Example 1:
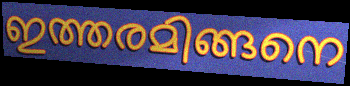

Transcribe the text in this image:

ഇത്തരമിങ്ങനെ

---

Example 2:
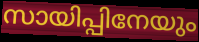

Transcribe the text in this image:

സായിപ്പിനേയും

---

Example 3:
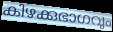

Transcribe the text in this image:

കിഴക്കുഭാഗവും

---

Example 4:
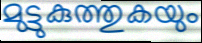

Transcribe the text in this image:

മുട്ടുകുത്തുകയും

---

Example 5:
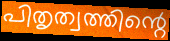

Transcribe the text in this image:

പിതൃത്വത്തിന്റെ